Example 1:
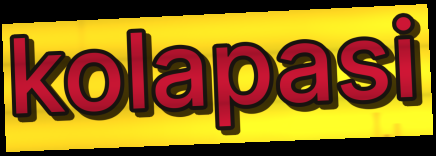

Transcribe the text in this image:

kolapasi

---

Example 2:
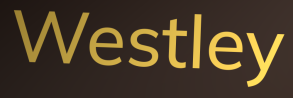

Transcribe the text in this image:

Westley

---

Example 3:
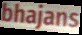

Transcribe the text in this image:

bhajans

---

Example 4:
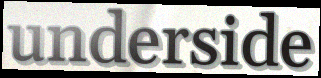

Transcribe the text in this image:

underside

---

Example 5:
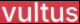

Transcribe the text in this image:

vultus